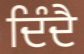
ਦਿੰਦੈ